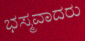
ಭಸ್ಮವಾದರು